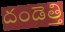
దండెత్తి